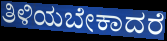
ತಿಳಿಯಬೇಕಾದರೆ